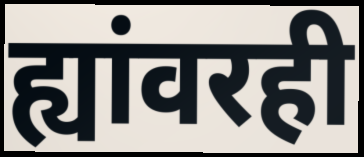
ह्यांवरही